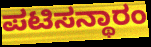
ಪಟಿಸನ್ಥಾರಂ